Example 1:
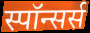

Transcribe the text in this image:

स्पॉन्सर्स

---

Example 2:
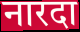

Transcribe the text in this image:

नारदा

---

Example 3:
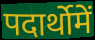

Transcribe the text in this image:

पदार्थोमें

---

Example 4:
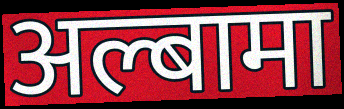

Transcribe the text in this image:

अल्बामा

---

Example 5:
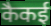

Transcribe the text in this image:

कैकई